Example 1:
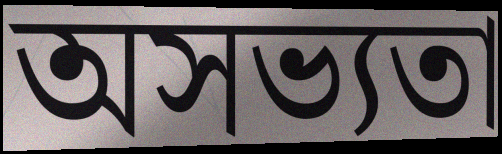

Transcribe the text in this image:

অসভ্যতা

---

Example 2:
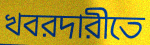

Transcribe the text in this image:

খবরদারীতে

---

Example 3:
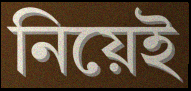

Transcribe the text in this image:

নিয়েই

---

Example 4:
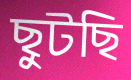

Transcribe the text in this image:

ছুটছি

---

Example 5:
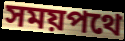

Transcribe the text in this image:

সময়পথে